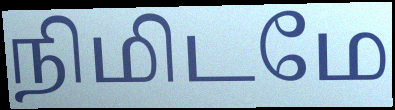
நிமிடமே